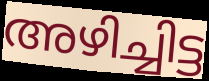
അഴിച്ചിട്ട